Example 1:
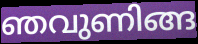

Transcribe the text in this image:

ഞവുണിങ്ങ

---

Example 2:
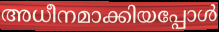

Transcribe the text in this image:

അധീനമാക്കിയപ്പോൾ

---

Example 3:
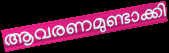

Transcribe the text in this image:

ആവരണമുണ്ടാക്കി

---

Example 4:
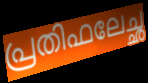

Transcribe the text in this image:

പ്രതിഫലേച്ഛ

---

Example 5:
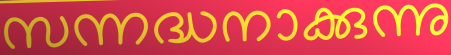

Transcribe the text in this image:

സന്നദ്ധനാക്കുന്നു